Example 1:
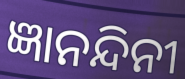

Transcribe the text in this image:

ଜ୍ଞାନନ୍ଦିନୀ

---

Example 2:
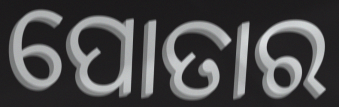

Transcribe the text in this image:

ପୋତାର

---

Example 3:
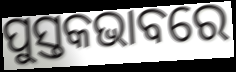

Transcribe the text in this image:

ପୁସ୍ତକଭାବରେ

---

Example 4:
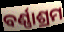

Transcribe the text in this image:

ବର୍ଣ୍ଣାଶ୍ରମ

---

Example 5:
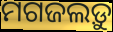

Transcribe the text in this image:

ମଗଜଲଡ଼ୁ